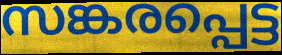
സങ്കരപ്പെട്ട